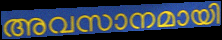
അവസാനമായി